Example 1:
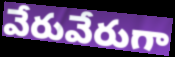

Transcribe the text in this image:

వేరువేరుగా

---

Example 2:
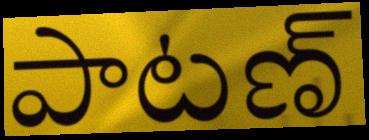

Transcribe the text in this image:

పాటణ్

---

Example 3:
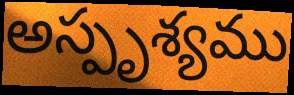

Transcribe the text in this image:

అస్పృశ్యము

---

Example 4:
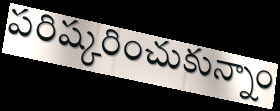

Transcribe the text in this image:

పరిష్కరించుకున్నాం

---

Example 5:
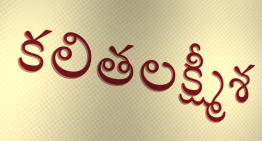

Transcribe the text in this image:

కలితలక్ష్మీశ